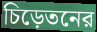
চিড়েতনের